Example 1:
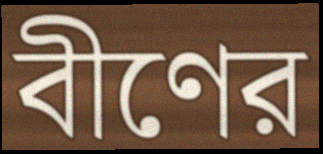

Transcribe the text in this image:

বীণের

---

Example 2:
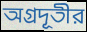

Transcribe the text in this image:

অগ্রদূতীর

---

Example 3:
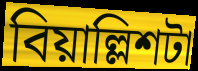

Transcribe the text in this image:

বিয়াল্লিশটা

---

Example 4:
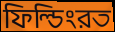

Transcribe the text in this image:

ফিল্ডিংরত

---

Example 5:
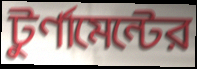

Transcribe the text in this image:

টুর্ণামেন্টের